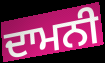
ਦਾਮਨੀ